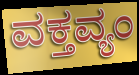
ವಕ್ತವ್ಯಂ